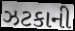
ઝટકાની